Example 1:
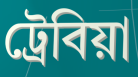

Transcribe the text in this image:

ট্রেবিয়া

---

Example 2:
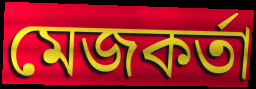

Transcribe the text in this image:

মেজকর্তা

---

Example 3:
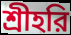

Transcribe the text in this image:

শ্রীহরি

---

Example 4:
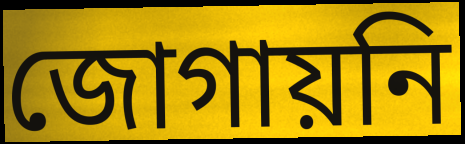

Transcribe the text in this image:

জোগায়নি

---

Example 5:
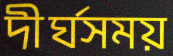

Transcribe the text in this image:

দীর্ঘসময়